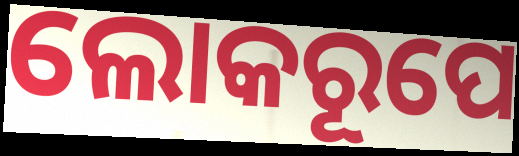
ଲୋକରୂପେ